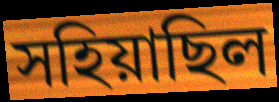
সহিয়াছিল